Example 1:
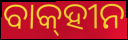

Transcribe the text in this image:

ବାକ୍‌ହୀନ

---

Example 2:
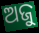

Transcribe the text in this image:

ଅଜୁ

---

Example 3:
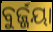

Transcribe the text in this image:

ବୁର୍ଜ୍ଜୟା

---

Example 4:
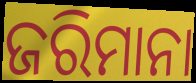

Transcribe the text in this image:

ଜରିମାନା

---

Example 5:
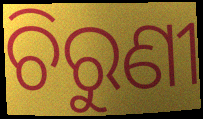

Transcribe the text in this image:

ଚିରୁଣୀ